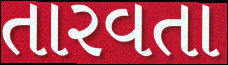
તારવતા